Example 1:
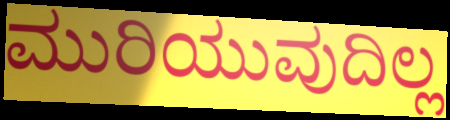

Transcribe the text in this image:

ಮುರಿಯುವುದಿಲ್ಲ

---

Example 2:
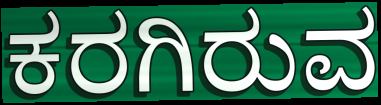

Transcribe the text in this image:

ಕರಗಿರುವ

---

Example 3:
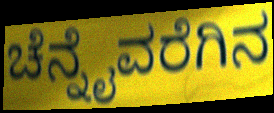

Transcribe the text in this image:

ಚೆನ್ನೈವರೆಗಿನ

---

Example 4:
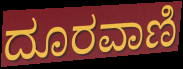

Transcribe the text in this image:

ದೂರವಾಣಿ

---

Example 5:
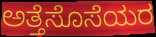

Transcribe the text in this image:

ಅತ್ತೆಸೊಸೆಯರ